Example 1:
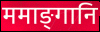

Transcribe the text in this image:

ममाङ्गानि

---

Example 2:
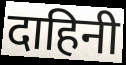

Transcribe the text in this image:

दाहिनी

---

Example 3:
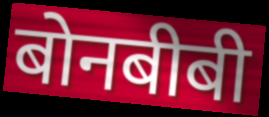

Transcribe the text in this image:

बोनबीबी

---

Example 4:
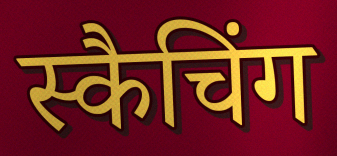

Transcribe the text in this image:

स्कैचिंग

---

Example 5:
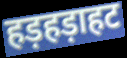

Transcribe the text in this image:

हड़हड़ाहट